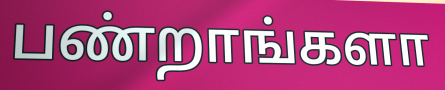
பண்றாங்களா